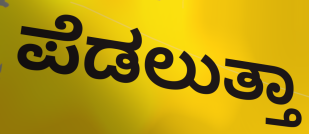
ಪೆಡಲುತ್ತಾ